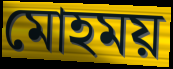
মোহময়